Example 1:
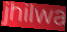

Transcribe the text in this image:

jhilwa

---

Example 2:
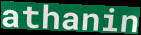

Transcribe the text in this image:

athanin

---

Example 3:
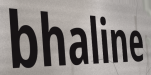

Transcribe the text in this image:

bhaline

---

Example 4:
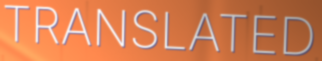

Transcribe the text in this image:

TRANSLATED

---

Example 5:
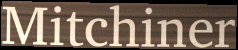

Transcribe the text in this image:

Mitchiner